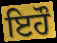
ਇਹੌ